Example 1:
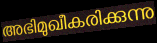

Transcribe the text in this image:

അഭിമുഖീകരിക്കുന്നു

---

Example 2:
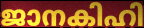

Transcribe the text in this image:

ജാനകിഹി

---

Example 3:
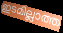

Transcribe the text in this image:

ഇടമില്ലാത്ത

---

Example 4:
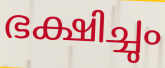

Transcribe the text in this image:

ഭക്ഷിച്ചും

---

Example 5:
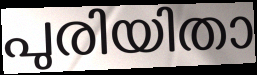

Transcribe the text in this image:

പുരിയിതാ